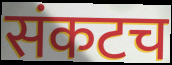
संकटच